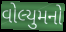
વોલ્યુમનો